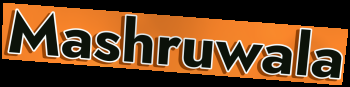
Mashruwala